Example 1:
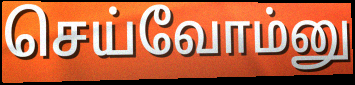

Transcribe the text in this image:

செய்வோம்னு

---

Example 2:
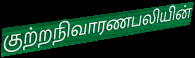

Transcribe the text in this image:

குற்றநிவாரணபலியின்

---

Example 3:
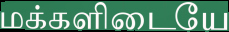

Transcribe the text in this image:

மக்களிடையே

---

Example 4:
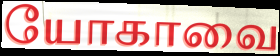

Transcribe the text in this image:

யோகாவை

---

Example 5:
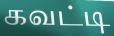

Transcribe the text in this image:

கவட்டி